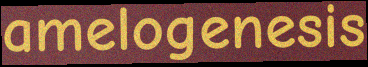
amelogenesis